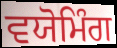
ਵਯੋਮਿੰਗ